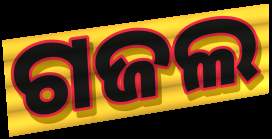
ଗଜଲ